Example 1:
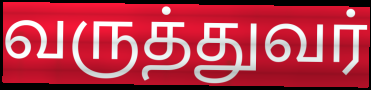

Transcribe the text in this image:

வருத்துவர்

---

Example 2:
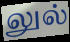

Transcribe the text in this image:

லுல்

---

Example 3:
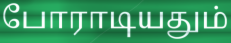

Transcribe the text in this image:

போராடியதும்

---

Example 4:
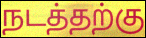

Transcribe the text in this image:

நடத்தற்கு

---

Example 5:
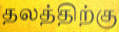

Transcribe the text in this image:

தலத்திற்கு